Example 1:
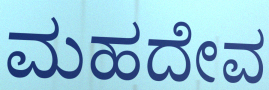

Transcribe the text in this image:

ಮಹದೇವ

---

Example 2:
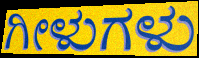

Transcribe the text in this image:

ಗೀಳುಗಳು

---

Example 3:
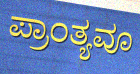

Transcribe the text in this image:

ಪ್ರಾಂತ್ಯವೂ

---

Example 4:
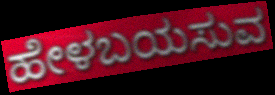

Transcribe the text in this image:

ಹೇಳಬಯಸುವ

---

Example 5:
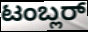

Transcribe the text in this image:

ಟಂಬ್ಲರ್